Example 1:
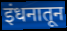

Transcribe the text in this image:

इंधनातून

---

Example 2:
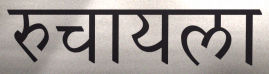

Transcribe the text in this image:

रुचायला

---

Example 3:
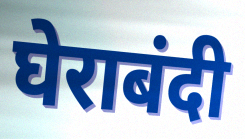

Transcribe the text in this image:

घेराबंदी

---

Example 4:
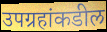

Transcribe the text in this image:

उपग्रहांकडील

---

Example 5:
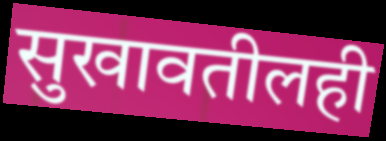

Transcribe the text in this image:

सुखावतीलही